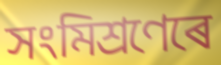
সংমিশ্ৰণেৰে